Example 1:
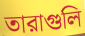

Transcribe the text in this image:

তারাগুলি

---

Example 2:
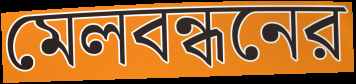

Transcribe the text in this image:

মেলবন্ধনের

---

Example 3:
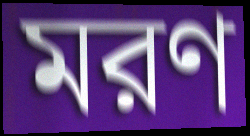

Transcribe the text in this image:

মরণ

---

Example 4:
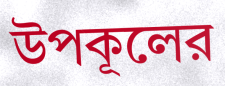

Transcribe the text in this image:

উপকূলের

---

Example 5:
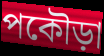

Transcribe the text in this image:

পকৌড়া